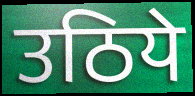
उठिये